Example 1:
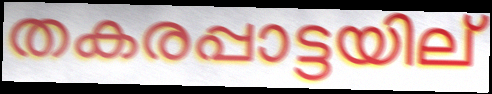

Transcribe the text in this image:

തകരപ്പാട്ടയില്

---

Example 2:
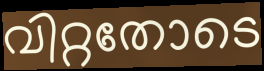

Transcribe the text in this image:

വിറ്റതോടെ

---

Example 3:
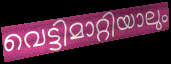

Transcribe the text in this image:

വെട്ടിമാറ്റിയാലും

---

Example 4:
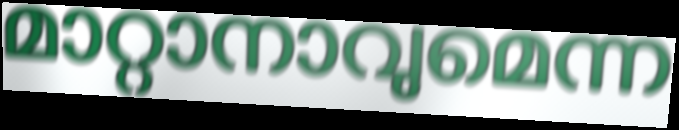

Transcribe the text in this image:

മാറ്റാനാവുമെന്ന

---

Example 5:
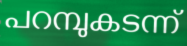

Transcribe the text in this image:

പറമ്പുകടന്ന്